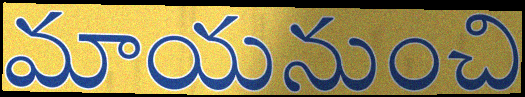
మాయనుంచి